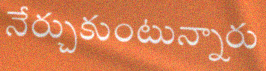
నేర్చుకుంటున్నారు